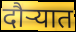
दौऱ्यात